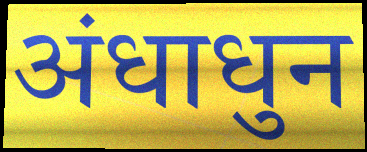
अंधाधुन